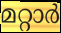
മറ്റാർ